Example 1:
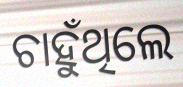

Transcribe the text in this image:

ଚାହୁଁଥିଲେ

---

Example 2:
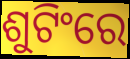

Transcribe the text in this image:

ଶୁଟିଂରେ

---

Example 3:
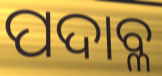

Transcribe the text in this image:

ପଦାବ୍ଳ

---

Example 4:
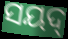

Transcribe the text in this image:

ସୟଦ୍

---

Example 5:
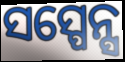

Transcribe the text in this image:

ସସ୍ପେନ୍ସ